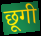
छूगी